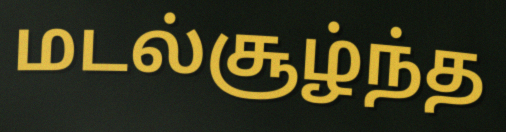
மடல்சூழ்ந்த